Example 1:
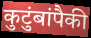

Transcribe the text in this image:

कुटुंबांपैकी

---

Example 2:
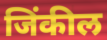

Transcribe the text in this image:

जिंकील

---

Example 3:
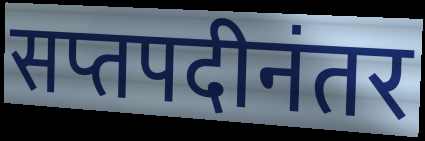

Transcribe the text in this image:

सप्तपदीनंतर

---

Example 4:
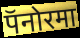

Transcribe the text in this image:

पॅनोरमा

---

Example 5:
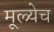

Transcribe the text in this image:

मूल्येच